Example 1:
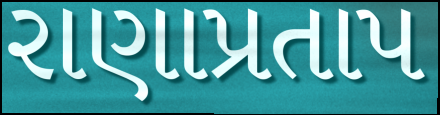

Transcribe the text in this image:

રાણાપ્રતાપ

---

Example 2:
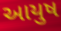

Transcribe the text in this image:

આયુષ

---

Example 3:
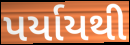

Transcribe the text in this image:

પર્યાયથી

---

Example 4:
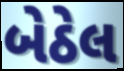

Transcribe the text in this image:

બેઠેલ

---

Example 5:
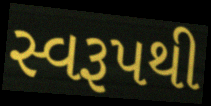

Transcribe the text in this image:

સ્વરૂપથી